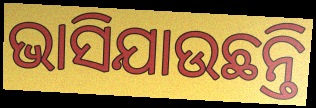
ଭାସିଯାଉଛନ୍ତି